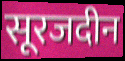
सूरजदीन